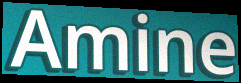
Amine